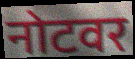
नोटवर